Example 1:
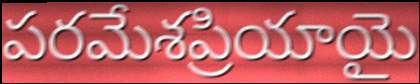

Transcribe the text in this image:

పరమేశప్రియాయై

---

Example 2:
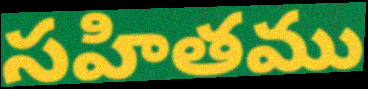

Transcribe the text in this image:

సహితము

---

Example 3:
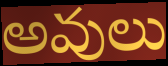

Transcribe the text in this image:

అవులు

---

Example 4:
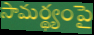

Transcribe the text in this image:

సామర్థ్యంపై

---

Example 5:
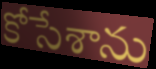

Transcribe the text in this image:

కోసేశాను